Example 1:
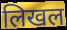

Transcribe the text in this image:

लिखल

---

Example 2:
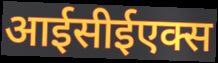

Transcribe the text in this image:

आईसीईएक्स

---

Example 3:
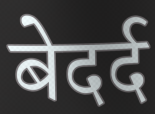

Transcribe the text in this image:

बेदर्द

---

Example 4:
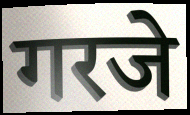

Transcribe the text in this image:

गरजे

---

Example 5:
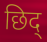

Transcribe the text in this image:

छिद्